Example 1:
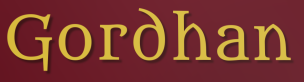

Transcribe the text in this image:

Gordhan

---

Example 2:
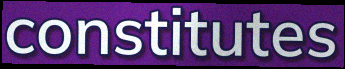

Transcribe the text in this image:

constitutes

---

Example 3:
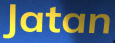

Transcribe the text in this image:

Jatan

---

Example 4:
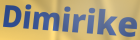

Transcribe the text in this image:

Dimirike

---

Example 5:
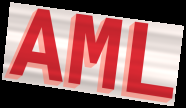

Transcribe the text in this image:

AML